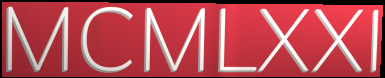
MCMLXXI